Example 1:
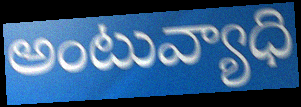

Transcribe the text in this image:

అంటువ్యాధి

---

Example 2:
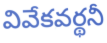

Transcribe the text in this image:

వివేకవర్థనీ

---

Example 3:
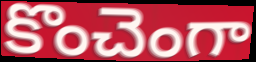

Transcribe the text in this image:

కొంచెంగా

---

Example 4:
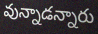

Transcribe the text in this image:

వున్నాడన్నారు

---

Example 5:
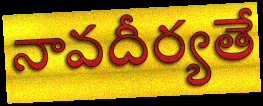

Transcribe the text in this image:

నావదీర్యతే